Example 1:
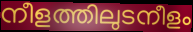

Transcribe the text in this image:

നീളത്തിലുടനീളം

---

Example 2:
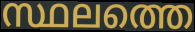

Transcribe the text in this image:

സ്ഥലത്തെ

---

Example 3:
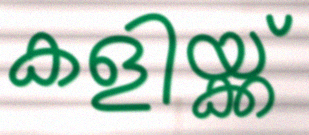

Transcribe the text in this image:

കളിയ്ക്ക്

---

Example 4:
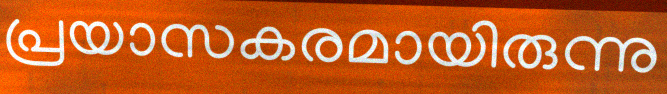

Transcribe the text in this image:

പ്രയാസകരമായിരുന്നു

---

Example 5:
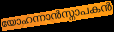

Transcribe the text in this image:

യോഹന്നാൻസ്നാപകൻ